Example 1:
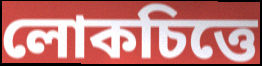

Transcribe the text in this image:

লোকচিত্তে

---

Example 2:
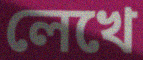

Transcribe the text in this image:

লেখে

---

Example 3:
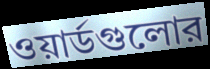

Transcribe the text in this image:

ওয়ার্ডগুলোর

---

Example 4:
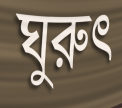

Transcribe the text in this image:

ঘুরুৎ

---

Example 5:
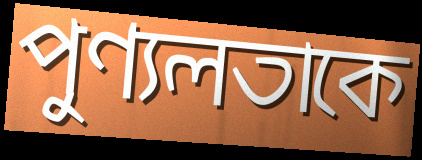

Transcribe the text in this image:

পুণ্যলতাকে